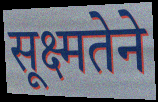
सूक्ष्मतेने